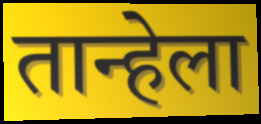
तान्हेला